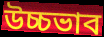
উচ্চভাব